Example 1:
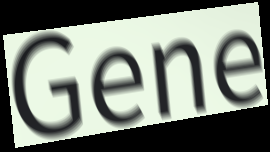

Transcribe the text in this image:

Gene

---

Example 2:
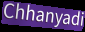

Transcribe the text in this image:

Chhanyadi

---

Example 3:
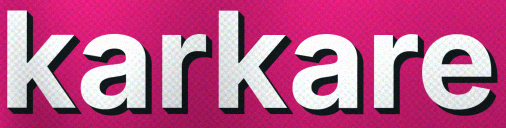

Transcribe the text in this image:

karkare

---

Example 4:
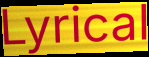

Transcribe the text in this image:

Lyrical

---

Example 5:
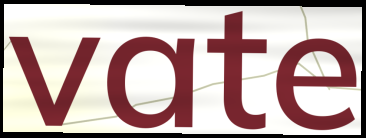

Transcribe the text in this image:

vate